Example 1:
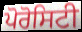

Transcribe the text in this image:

ਪੋਰੋਸਿਟੀ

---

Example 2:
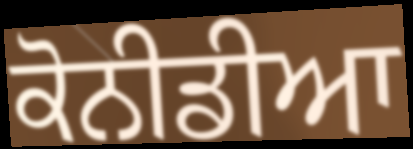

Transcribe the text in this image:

ਕੋਨੀਡੀਆ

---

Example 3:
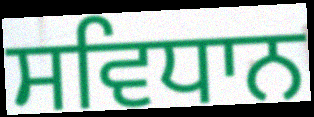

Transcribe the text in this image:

ਸਵਿਧਾਨ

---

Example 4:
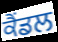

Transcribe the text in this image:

ਕੈਂਡਲ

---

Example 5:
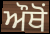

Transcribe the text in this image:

ਔਥੋਂ